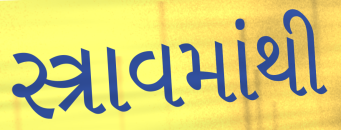
સ્ત્રાવમાંથી